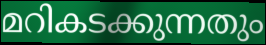
മറികടക്കുന്നതും